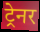
ट्रेनर